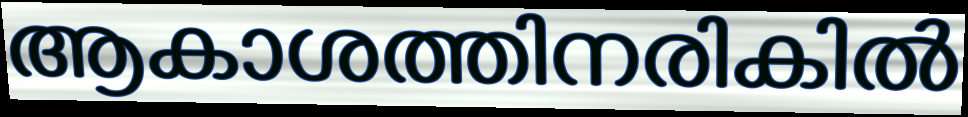
ആകാശത്തിനരികിൽ